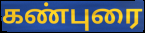
கண்புரை